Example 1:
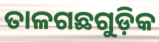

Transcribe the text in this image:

ତାଳଗଛଗୁଡ଼ିକ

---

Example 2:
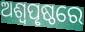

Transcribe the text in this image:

ଅଶ୍ୱପୃଷ୍ଠରେ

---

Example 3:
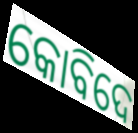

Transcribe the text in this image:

କୋବିଦେ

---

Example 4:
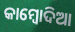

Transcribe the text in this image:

କାମ୍ବୋଦିଆ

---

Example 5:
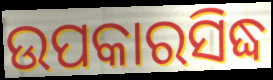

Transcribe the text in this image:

ଉପକାରସିଦ୍ଧ